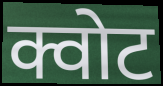
क्वोट